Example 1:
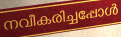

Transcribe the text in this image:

നവീകരിച്ചപ്പോൾ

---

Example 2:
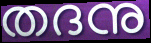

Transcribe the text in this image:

തദനു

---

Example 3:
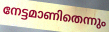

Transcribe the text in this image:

നേട്ടമാണിതെന്നും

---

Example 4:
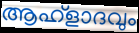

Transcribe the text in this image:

ആഹ്ളാദവും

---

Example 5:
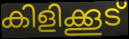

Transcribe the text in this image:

കിളിക്കൂട്